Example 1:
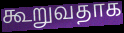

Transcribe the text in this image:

கூறுவதாக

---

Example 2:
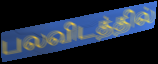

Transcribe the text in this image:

பலவிடத்தில்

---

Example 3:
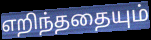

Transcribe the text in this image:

எறிந்ததையும்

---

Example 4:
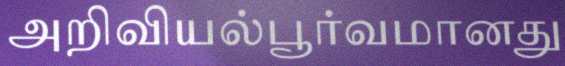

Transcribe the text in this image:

அறிவியல்பூர்வமானது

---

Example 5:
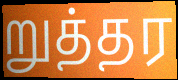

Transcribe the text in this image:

றுத்தர